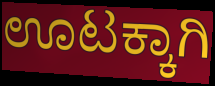
ಊಟಕ್ಕಾಗಿ